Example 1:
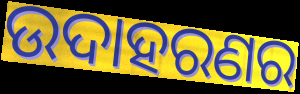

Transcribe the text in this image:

ଉଦାହରଣର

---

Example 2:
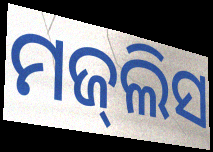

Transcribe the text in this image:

ମଜ୍‌ଲିସ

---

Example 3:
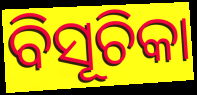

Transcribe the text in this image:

ବିସୂଚିକା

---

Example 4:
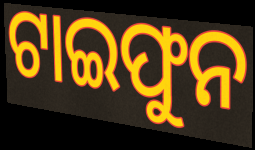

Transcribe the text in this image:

ଟାଇଫୁନ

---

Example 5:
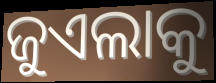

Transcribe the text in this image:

ଜୁଏଲାକୁ